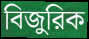
বিজুরিক